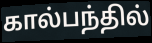
கால்பந்தில்